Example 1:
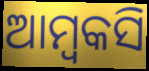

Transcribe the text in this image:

ଆମ୍ବକସି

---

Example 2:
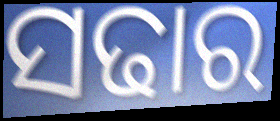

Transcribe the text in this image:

ସଢାର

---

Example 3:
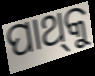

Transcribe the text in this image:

ପାଥ୍‌କୁ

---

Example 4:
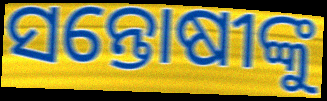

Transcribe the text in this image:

ସନ୍ତୋଷୀଙ୍କୁ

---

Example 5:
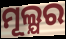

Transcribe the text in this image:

ମୂଲ୍ଯର